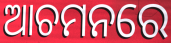
ଆଚମନରେ